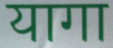
यागा